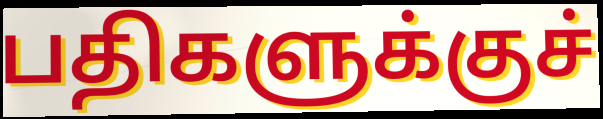
பதிகளுக்குச்